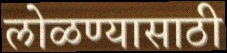
लोळण्यासाठी